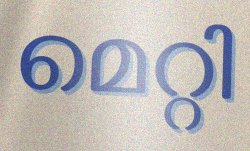
മെറ്റി